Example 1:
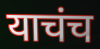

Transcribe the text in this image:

याचंच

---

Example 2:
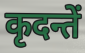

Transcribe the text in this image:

कृदन्तें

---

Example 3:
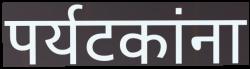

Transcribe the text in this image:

पर्यटकांना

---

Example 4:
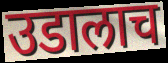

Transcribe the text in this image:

उडालाच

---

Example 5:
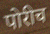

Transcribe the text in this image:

पोरीच